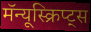
मॅन्यूस्क्रिप्ट्स